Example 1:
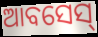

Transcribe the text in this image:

ଆବସେସ୍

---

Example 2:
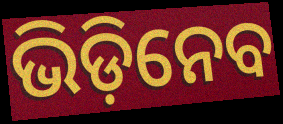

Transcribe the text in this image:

ଭିଡ଼ିନେବ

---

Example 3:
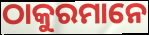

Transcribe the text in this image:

ଠାକୁରମାନେ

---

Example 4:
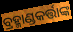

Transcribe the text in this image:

ବ୍ରହ୍ମାଣ୍ଡକର୍ତ୍ତାଙ୍କ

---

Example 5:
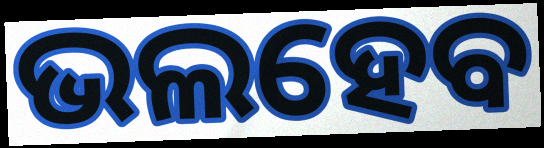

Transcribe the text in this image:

ଭଲହେବ